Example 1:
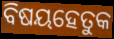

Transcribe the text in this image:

ବିଷୟହେତୁକ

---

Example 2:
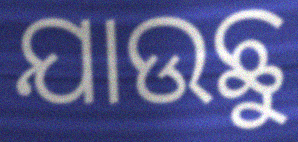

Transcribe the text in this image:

ଯାଉଛୁ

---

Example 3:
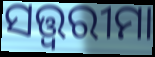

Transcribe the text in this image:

ସତ୍ତ୍ୱରୀମା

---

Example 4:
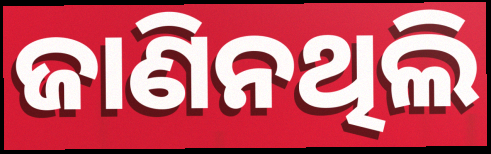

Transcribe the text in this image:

ଜାଣିନଥିଲି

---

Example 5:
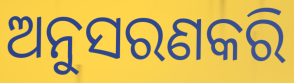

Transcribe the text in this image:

ଅନୁସରଣକରି